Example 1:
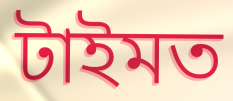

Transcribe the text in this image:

টাইমত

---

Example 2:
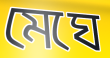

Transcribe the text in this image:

মেঘে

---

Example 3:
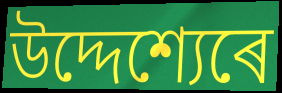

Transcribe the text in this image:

উদ্দেশ্যেৰে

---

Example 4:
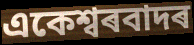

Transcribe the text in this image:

একেশ্বৰবাদৰ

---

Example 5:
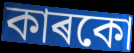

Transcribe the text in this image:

কাৰকো